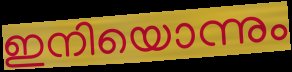
ഇനിയൊന്നും